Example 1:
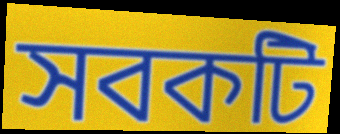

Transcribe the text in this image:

সবকটি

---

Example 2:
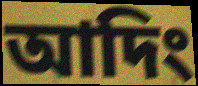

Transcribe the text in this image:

আদিং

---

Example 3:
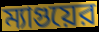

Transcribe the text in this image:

ম্যাগুয়ের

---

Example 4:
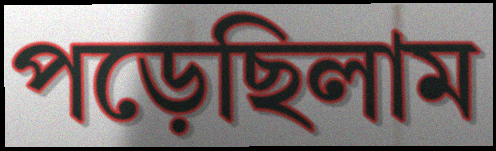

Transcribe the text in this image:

পড়েছিলাম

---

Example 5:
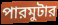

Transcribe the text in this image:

পারমুটার